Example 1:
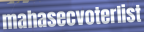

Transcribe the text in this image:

mahasecvoterlist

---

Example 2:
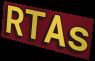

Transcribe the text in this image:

RTAs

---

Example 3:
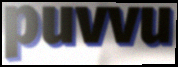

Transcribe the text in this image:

puvvu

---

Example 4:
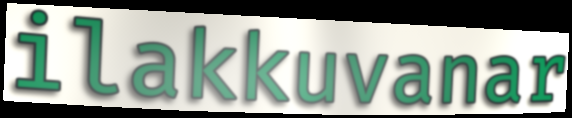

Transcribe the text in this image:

ilakkuvanar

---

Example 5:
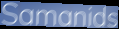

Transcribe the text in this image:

Samanids